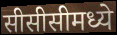
सीसीसीमध्ये